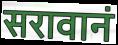
सरावानं